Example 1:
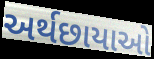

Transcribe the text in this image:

અર્થછાયાઓ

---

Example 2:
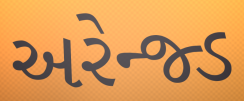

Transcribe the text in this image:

અરેન્જ્ડ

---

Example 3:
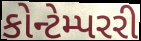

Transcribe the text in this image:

કોન્ટેમ્પરરી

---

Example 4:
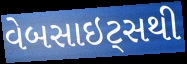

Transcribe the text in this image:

વેબસાઇટ્સથી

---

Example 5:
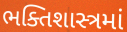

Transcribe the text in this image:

ભક્તિશાસ્ત્રમાં